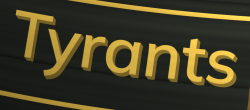
Tyrants